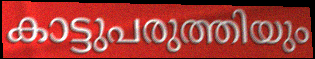
കാട്ടുപരുത്തിയും